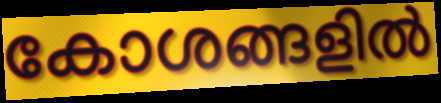
കോശങ്ങളിൽ